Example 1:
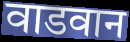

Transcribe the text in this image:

वाडवान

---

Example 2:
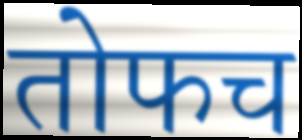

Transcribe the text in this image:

तोफच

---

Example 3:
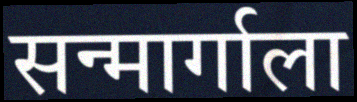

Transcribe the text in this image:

सन्मार्गाला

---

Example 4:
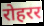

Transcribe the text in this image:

रोहरर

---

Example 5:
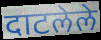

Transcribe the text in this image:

दाटलेले